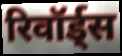
रिवॉर्ड्स